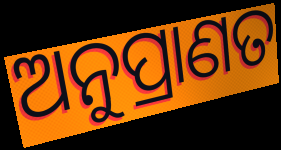
ଅନୁପ୍ରାଣତ